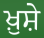
ਖ਼ੁਸ਼ੇ